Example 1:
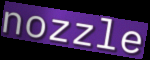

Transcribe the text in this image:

nozzle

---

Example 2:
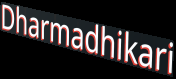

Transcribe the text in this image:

Dharmadhikari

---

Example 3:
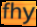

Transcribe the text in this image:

fhy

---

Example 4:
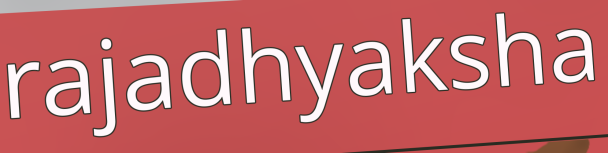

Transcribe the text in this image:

rajadhyaksha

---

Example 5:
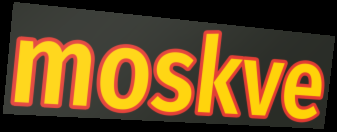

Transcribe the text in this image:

moskve